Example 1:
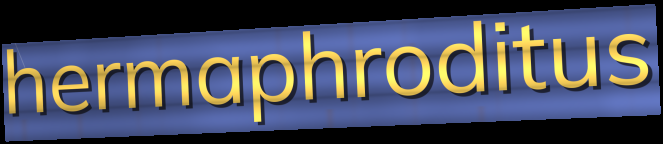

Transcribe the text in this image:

hermaphroditus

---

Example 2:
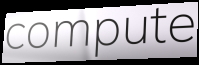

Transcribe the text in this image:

compute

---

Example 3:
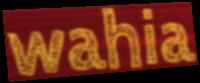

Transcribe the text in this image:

wahia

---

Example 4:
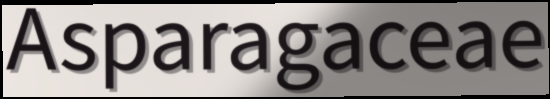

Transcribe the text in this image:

Asparagaceae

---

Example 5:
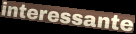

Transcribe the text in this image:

interessante